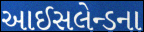
આઈસલેન્ડના